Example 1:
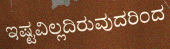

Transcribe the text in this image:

ಇಷ್ಟವಿಲ್ಲದಿರುವುದರಿಂದ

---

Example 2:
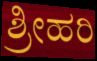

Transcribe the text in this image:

ಶ್ರೀಹರಿ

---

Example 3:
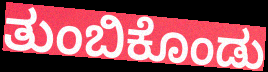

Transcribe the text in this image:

ತುಂಬಿಕೊಂಡು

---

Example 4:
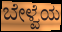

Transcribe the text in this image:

ಬೇಳ್ವೆಯ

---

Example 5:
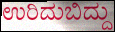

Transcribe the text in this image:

ಉರಿದುಬಿದ್ದು